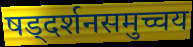
षड्दर्शनसमुच्चय